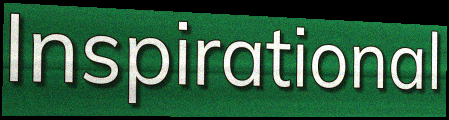
Inspirational